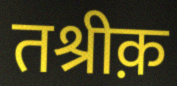
तश्रीक़